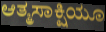
ಆತ್ಮಸಾಕ್ಷಿಯೂ